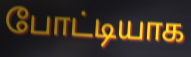
போட்டியாக